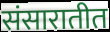
संसारातीत